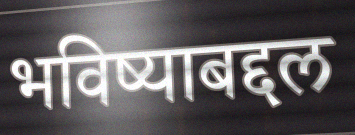
भविष्याबद्दल